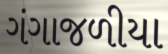
ગંગાજળીયા